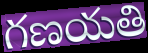
గణయతి